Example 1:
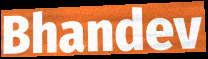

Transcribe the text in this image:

Bhandev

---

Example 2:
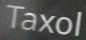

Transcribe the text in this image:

Taxol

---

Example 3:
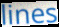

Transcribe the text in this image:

lines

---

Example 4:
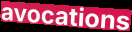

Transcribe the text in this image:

avocations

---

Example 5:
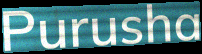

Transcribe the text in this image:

Purusha